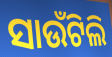
ସାଉଁଟିଲି